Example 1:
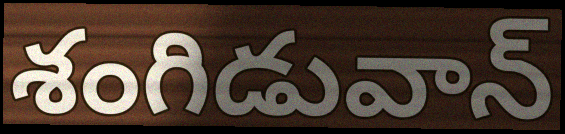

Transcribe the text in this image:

శంగిడువాన్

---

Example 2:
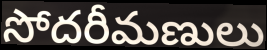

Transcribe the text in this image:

సోదరీమణులు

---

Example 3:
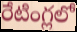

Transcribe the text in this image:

రేటింగ్లలో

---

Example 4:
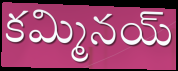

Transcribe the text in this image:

కమ్మినయ్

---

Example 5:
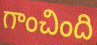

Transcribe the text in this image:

గాంచింది